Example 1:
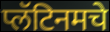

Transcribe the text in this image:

प्लॅटिनमचे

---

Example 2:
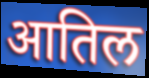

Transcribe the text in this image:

आतिल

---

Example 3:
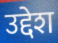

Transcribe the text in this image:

उद्देश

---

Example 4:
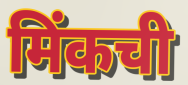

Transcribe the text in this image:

मिंकची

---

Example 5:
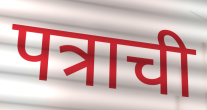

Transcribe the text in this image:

पत्राची